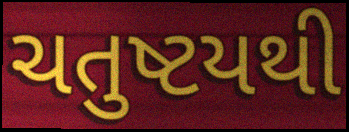
ચતુષ્ટયથી